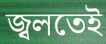
জ্বলতেই